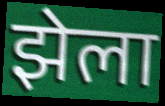
झेला